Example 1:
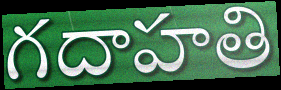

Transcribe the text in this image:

గదాహతి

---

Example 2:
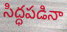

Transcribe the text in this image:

సిద్ధపడినా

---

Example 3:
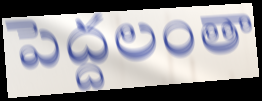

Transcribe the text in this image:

పెద్దలంతా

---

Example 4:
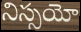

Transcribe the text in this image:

నిస్సయో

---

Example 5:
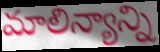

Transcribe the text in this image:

మాలిన్యాన్ని